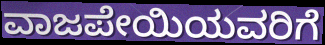
ವಾಜಪೇಯಿಯವರಿಗೆ